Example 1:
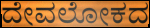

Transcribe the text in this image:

ದೇವಲೋಕದ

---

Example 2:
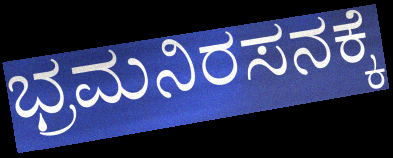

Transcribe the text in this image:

ಭ್ರಮನಿರಸನಕ್ಕೆ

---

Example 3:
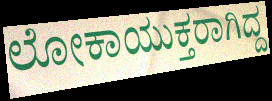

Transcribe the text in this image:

ಲೋಕಾಯುಕ್ತರಾಗಿದ್ದ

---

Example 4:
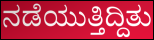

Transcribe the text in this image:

ನಡೆಯುತ್ತಿದ್ದಿತು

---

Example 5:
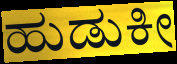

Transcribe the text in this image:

ಹುಡುಕೀ